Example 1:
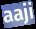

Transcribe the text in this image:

aaji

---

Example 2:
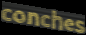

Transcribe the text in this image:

conches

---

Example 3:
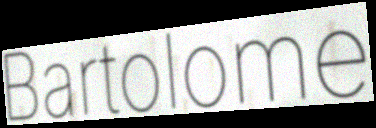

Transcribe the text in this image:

Bartolome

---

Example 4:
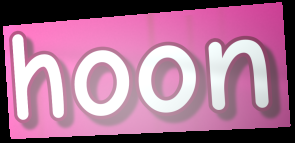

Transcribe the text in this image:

hoon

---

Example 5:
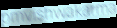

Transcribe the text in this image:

pmvishwakarma